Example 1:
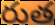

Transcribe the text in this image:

రుత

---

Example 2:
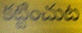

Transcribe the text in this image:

కట్టించుట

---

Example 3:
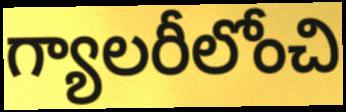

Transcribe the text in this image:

గ్యాలరీలోంచి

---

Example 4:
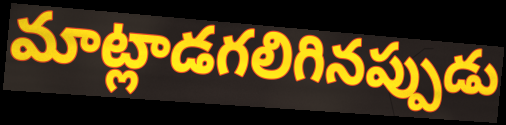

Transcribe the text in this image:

మాట్లాడగలిగినప్పుడు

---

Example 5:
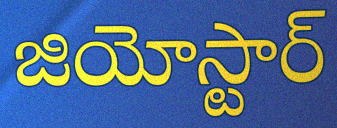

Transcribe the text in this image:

జియోస్టార్